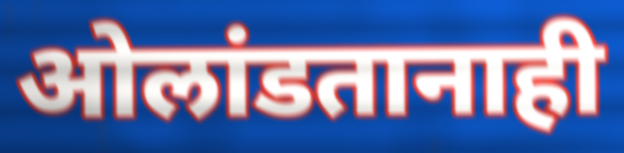
ओलांडतानाही